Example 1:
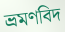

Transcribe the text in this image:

ভ্রমণবিদ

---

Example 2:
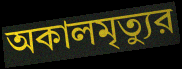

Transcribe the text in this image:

অকালমৃত্যুর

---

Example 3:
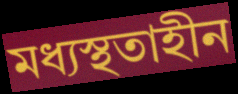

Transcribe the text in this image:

মধ্যস্থতাহীন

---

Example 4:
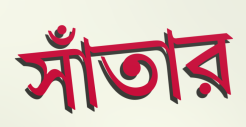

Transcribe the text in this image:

সাঁতার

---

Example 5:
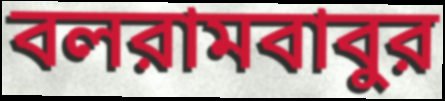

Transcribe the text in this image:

বলরামবাবুর